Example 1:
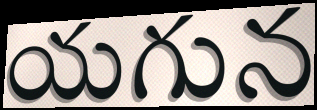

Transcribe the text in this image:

యగున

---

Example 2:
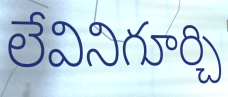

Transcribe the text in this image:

లేవినిగూర్చి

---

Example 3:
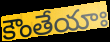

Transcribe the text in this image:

కౌంతేయాః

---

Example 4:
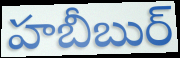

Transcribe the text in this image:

హబీబుర్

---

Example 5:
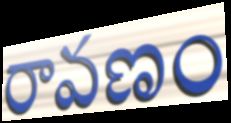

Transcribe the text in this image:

రావణం